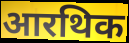
आरथिक